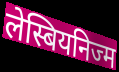
लेस्बियनिज्म